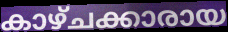
കാഴ്ചക്കാരായ